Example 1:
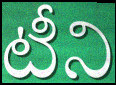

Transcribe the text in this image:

టీని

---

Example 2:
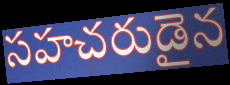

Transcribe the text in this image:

సహచరుడైన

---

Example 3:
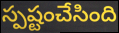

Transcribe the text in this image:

స్పష్టంచేసింది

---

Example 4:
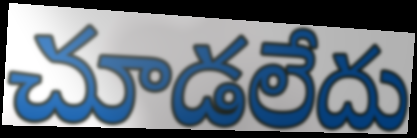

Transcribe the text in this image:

చూడలేదు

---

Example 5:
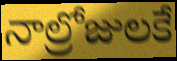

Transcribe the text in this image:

నాల్రోజులకే